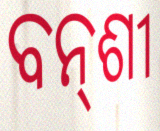
ବନ୍‌ଶୀ